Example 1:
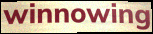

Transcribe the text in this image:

winnowing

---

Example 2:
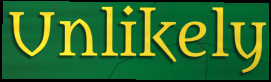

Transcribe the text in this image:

Unlikely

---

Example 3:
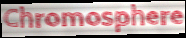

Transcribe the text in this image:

Chromosphere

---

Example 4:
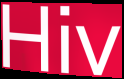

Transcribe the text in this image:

Hiv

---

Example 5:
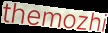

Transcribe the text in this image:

themozhi